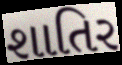
શાતિર